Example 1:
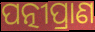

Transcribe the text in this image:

ପତ୍ନୀପ୍ରାଣ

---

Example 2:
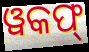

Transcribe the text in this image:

ୱକଫ୍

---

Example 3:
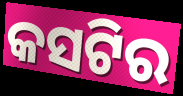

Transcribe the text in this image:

କସଟିର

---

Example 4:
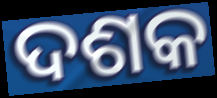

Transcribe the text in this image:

ଦଶକ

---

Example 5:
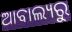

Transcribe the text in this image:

ଆବାଲ୍ୟରୁ